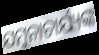
ଯମୁନାଚାର୍ଯ୍ୟଙ୍କ